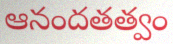
ఆనందతత్వం